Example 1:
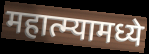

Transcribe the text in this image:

महात्म्यामध्ये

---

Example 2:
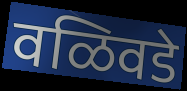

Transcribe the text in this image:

वळिवडे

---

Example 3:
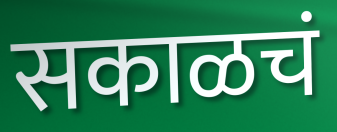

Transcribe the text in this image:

सकाळचं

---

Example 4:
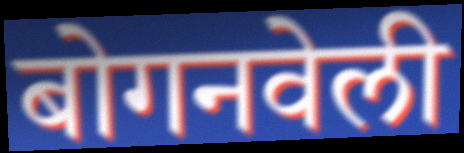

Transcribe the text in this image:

बोगनवेली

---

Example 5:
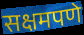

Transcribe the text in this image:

सक्षमपणे